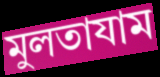
মুলতাযাম